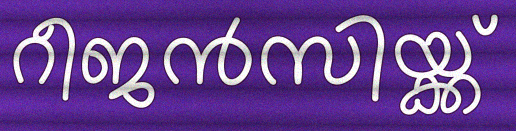
റീജൻസിയ്ക്ക്